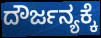
ದೌರ್ಜನ್ಯಕ್ಕೆ